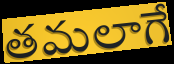
తమలాగే